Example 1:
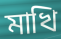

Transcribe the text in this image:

মাখি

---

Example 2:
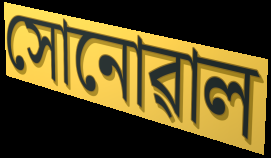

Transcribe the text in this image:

সোনোৱাল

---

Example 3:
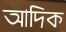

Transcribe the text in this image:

আদিক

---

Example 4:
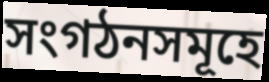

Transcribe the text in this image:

সংগঠনসমূহে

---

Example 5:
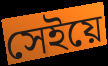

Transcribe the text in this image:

সেইয়ে